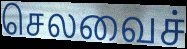
செலவைச்